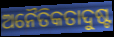
ଅନୈତିକତାଦୁଷ୍ଟ